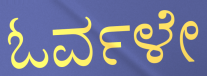
ಓರ್ವಳೇ